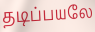
தடிப்பயலே